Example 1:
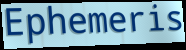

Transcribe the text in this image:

Ephemeris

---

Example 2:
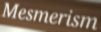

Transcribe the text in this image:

Mesmerism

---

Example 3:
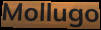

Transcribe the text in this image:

Mollugo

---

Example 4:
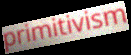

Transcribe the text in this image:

primitivism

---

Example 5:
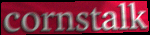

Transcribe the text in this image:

cornstalk